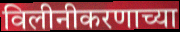
विलीनीकरणाच्या